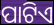
ପାଟିଏ